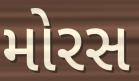
મોરસ